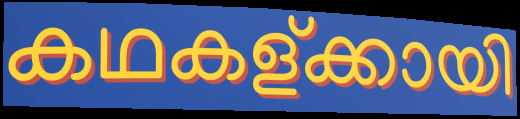
കഥകള്ക്കായി